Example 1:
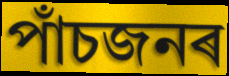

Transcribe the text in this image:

পাঁচজনৰ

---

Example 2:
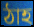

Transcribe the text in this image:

ঠাহ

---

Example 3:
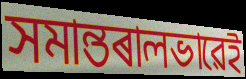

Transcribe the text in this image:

সমান্তৰালভাৱেই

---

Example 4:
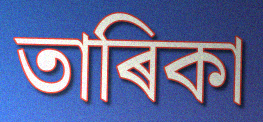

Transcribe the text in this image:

তাৰিকা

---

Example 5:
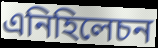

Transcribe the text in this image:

এনিহিলেচন